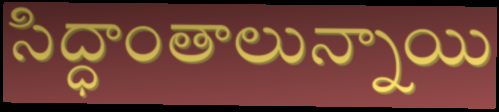
సిద్ధాంతాలున్నాయి